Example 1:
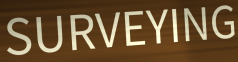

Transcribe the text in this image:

SURVEYING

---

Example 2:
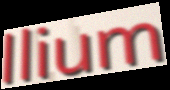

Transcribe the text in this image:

Ilium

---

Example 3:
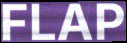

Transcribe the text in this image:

FLAP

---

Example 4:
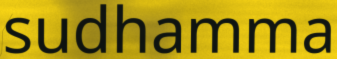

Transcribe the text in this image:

sudhamma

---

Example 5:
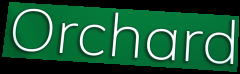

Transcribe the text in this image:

Orchard